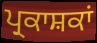
ਪ੍ਰਕਾਸ਼ਕਾਂ